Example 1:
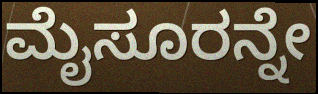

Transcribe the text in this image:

ಮೈಸೂರನ್ನೇ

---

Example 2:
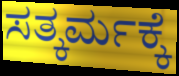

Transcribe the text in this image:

ಸತ್ಕರ್ಮಕ್ಕೆ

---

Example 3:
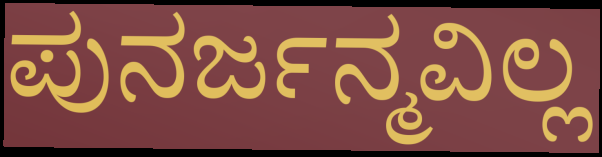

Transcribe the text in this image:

ಪುನರ್ಜನ್ಮವಿಲ್ಲ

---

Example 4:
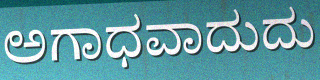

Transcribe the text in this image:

ಅಗಾಧವಾದುದು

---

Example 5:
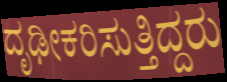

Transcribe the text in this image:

ದೃಢೀಕರಿಸುತ್ತಿದ್ದರು